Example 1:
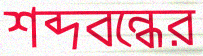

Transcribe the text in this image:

শব্দবন্ধের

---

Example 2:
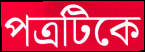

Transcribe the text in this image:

পত্রটিকে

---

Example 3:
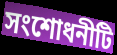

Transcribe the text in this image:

সংশোধনীটি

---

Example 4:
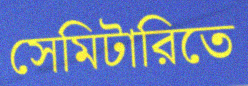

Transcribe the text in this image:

সেমিটারিতে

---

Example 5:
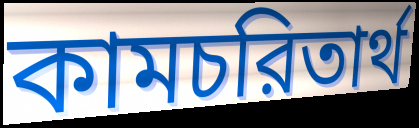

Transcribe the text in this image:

কামচরিতার্থ